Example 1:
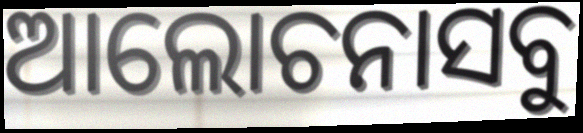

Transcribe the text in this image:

ଆଲୋଚନାସବୁ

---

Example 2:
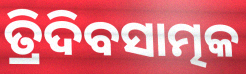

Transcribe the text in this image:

ତ୍ରିଦିବସାତ୍ମକ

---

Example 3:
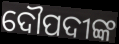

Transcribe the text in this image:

ଦୌପଦୀଙ୍କ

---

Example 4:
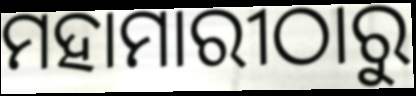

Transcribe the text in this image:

ମହାମାରୀଠାରୁ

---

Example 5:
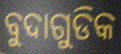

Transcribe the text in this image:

ବୁଦାଗୁଡିକ